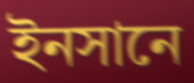
ইনসানে